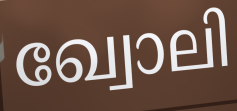
ഖ്വോലി